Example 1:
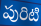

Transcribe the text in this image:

పురిటి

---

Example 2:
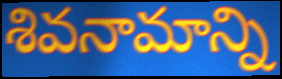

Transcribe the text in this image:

శివనామాన్ని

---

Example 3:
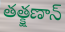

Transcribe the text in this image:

తత్క్షణాన్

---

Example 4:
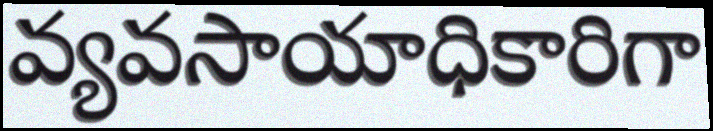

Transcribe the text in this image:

వ్యవసాయాధికారిగా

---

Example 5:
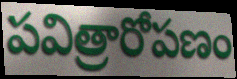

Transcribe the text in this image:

పవిత్రారోపణం